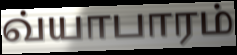
வ்யாபாரம்